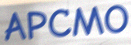
APCMO